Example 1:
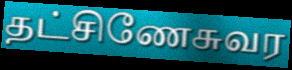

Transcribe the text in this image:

தட்சிணேசுவர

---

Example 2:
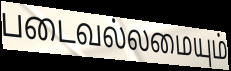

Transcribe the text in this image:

படைவல்லமையும்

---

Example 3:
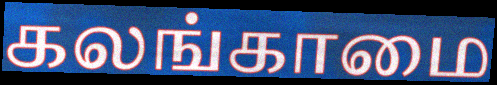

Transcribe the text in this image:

கலங்காமை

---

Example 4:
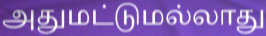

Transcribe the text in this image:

அதுமட்டுமல்லாது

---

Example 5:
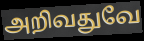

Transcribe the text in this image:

அறிவதுவே